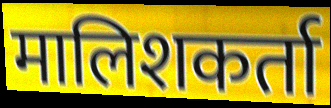
मालिशकर्ता